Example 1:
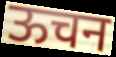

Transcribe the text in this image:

ऊचन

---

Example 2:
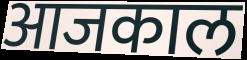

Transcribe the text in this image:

आजकाल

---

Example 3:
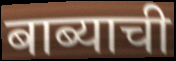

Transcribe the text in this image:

बाब्याची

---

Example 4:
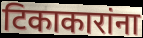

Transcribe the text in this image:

टिकाकारांना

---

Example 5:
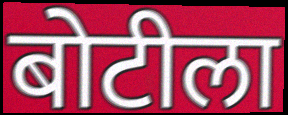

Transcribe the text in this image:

बोटीला